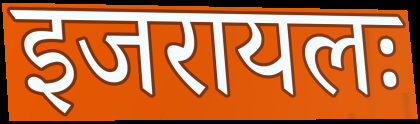
इजरायलः